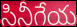
సినీగేయ